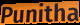
Punitha